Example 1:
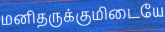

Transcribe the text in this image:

மனிதருக்குமிடையே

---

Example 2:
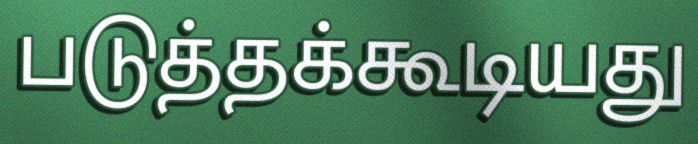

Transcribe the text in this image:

படுத்தக்கூடியது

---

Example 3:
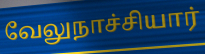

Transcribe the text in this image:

வேலுநாச்சியார்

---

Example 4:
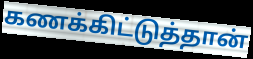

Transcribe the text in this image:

கணக்கிட்டுத்தான்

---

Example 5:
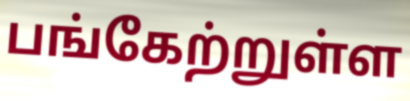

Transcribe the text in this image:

பங்கேற்றுள்ள